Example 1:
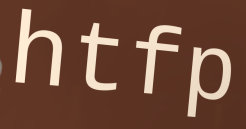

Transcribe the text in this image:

htfp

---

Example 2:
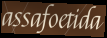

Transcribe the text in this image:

assafoetida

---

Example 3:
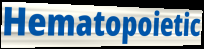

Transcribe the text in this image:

Hematopoietic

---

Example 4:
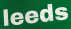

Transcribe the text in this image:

leeds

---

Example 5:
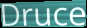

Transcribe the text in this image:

Druce